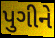
પુગીને